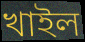
খাইল